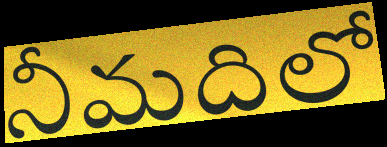
నీమదిలో